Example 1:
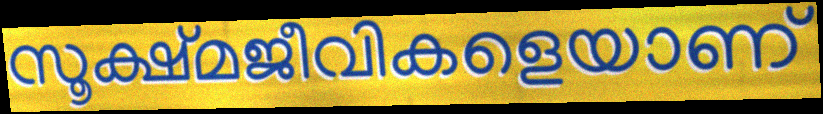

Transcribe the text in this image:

സൂക്ഷ്മജീവികളെയാണ്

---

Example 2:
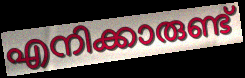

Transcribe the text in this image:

എനിക്കാരുണ്ട്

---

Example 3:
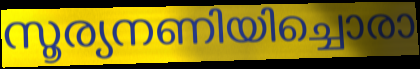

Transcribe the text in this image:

സൂര്യനണിയിച്ചൊരാ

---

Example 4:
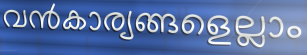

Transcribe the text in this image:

വൻകാര്യങ്ങളെല്ലാം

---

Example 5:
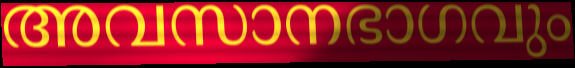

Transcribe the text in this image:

അവസാനഭാഗവും